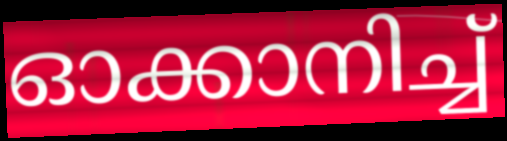
ഓക്കാനിച്ച്